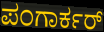
ಪಂಗಾರ್ಕರ್